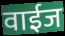
वाईज